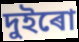
দুইৰো